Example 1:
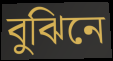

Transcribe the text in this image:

বুঝিনে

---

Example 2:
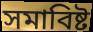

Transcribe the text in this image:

সমাবিষ্ট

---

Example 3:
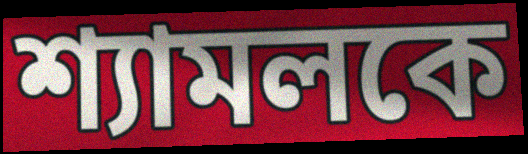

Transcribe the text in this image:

শ্যামলকে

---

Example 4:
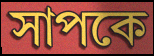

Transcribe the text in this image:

সাপকে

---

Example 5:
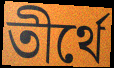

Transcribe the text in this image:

তীর্থে